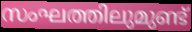
സംഘത്തിലുമുണ്ട്